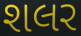
શલર